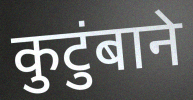
कुटुंबाने